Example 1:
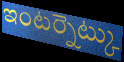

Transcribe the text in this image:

ఇంటర్నెట్కు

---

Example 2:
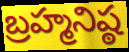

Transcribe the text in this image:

బ్రహ్మనిష్ఠ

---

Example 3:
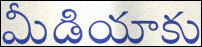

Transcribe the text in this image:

మీడియాకు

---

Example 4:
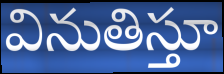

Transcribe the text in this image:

వినుతిస్తూ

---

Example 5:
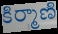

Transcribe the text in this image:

కిర్మాణి